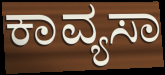
ಕಾವ್ಯಸಾ